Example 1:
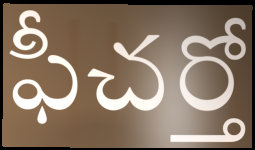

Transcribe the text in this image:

ఫీచర్తో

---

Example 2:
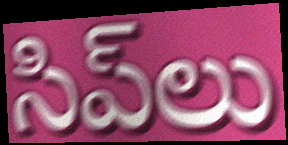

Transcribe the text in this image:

సిప్‌లు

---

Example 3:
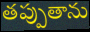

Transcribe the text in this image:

తప్పుతాను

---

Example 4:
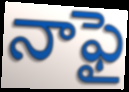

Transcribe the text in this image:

నాఫై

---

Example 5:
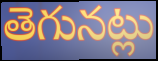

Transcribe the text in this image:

తెగునట్లు